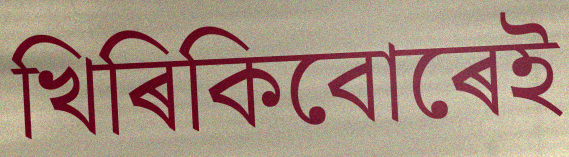
খিৰিকিবোৰেই